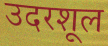
उदरशूल